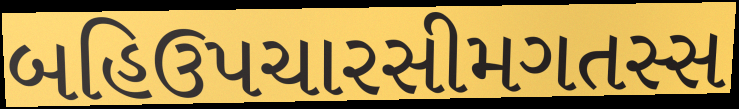
બહિઉપચારસીમગતસ્સ